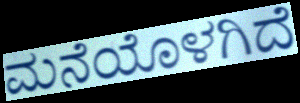
ಮನೆಯೊಳಗಿದೆ